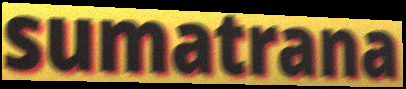
sumatrana